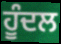
ਹੂੰਦਲ